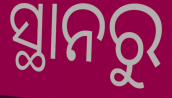
ସ୍ଥାନରୁ